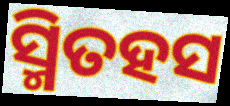
ସ୍ମିତହସ